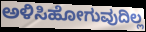
ಅಳಿಸಿಹೋಗುವುದಿಲ್ಲ